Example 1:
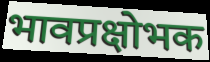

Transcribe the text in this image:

भावप्रक्षोभक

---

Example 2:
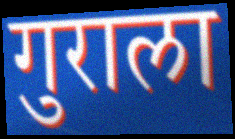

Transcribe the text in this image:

गुराला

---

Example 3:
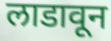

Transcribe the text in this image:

लाडावून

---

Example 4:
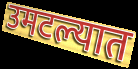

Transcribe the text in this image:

उमटल्यात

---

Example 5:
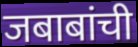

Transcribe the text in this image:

जबाबांची